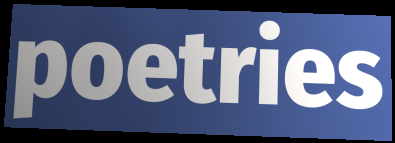
poetries